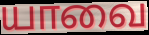
யாவை